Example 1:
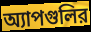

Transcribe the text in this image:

অ্যাপগুলির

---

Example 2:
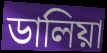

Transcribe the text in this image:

ডালিয়া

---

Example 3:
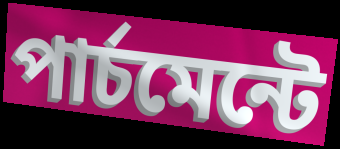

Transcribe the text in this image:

পার্চমেন্টে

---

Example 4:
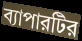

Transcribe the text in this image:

ব্যাপারটির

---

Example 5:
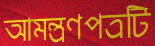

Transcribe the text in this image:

আমন্ত্রণপত্রটি